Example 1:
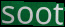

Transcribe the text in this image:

soot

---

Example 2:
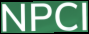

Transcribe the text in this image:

NPCI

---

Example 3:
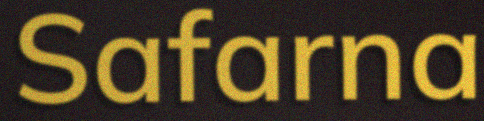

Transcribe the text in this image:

Safarna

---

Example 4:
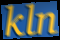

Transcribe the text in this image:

kln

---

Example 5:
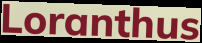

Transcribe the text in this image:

Loranthus